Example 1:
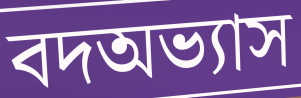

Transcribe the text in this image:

বদঅভ্যাস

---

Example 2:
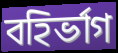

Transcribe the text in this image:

বহির্ভাগ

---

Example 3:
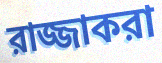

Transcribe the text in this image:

রাজ্জাকরা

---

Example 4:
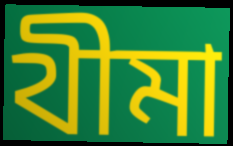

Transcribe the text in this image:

থীমা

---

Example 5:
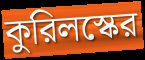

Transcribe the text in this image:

কুরিলস্কের